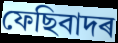
ফেছিবাদৰ